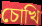
চোখি